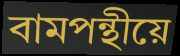
বামপন্থীয়ে